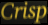
Crisp